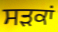
ਸਡ਼ਕਾਂ